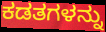
ಕಡತಗಳನ್ನು